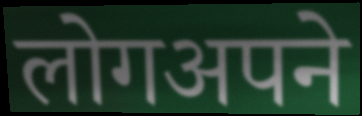
लोगअपने